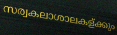
സര്വകലാശാലകള്ക്കും